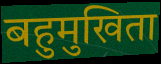
बहुमुखिता